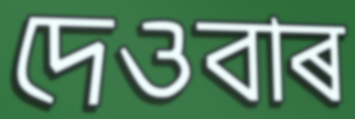
দেওবাৰ